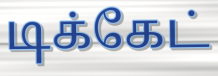
டிக்கேட்